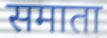
समाता